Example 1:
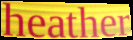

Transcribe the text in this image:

heather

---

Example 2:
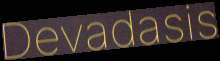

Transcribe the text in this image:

Devadasis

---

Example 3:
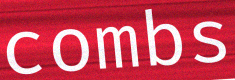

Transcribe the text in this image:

combs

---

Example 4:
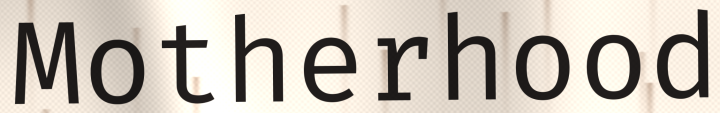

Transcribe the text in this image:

Motherhood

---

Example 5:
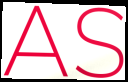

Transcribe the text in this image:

AS